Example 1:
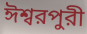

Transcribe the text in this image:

ঈশ্বরপুরী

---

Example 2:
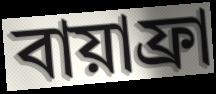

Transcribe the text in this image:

বায়াফ্রা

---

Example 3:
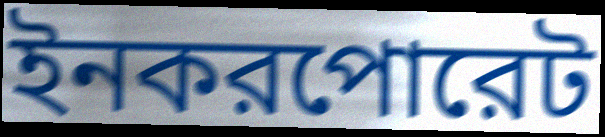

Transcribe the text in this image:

ইনকরপোরেট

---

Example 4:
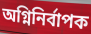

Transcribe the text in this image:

অগ্নিনির্বাপক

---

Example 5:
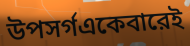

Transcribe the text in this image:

উপসর্গএকেবারেই